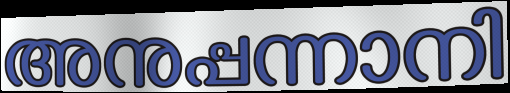
അനുപ്പന്നാനി